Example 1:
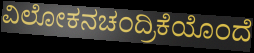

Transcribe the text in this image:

ವಿಲೋಕನಚಂದ್ರಿಕೆಯೊಂದೆ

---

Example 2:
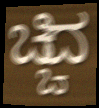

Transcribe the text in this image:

ಚ್ಚಿದ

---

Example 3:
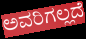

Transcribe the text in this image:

ಅವರಿಗಲ್ಲದೆ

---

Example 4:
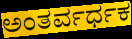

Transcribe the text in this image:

ಅಂತರ್ವರ್ಧಕ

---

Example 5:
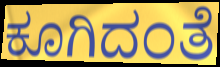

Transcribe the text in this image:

ಕೂಗಿದಂತೆ